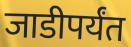
जाडीपर्यंत